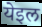
येइल